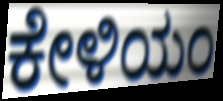
ಕೇಳಿಯಂ